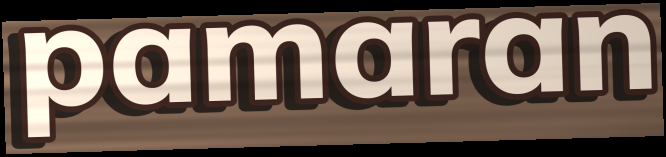
pamaran